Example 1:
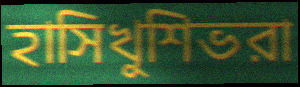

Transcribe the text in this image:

হাসিখুশিভরা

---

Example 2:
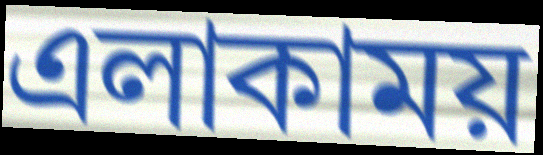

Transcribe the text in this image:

এলাকাময়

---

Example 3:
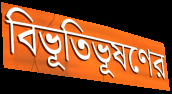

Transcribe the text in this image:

বিভূতিভূষণের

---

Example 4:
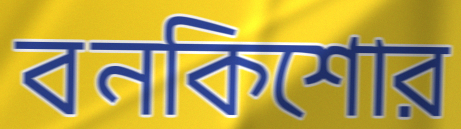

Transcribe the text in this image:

বনকিশোর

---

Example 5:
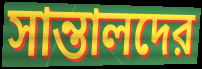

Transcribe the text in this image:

সান্তালদের